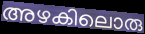
അഴകിലൊരു